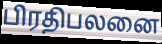
பிரதிபலனை